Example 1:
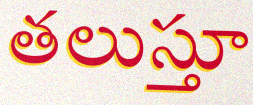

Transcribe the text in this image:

తలుస్తూ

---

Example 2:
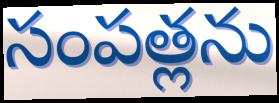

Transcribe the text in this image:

సంపత్లను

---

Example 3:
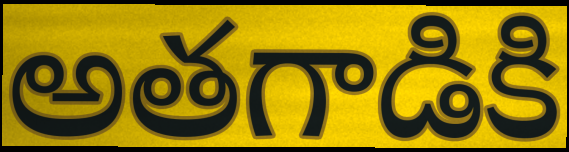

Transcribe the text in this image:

అతగాడికి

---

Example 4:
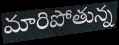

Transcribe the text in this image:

మారిపోతున్న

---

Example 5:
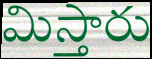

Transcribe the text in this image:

మిస్తారు